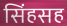
सिंहसह